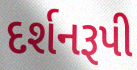
દર્શનરૂપી